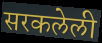
सरकलेली